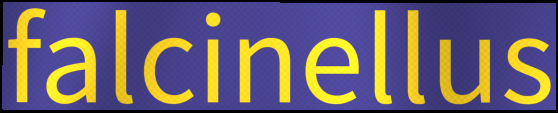
falcinellus